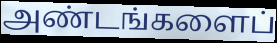
அண்டங்களைப்